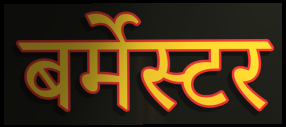
बर्मेस्टर